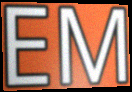
EM